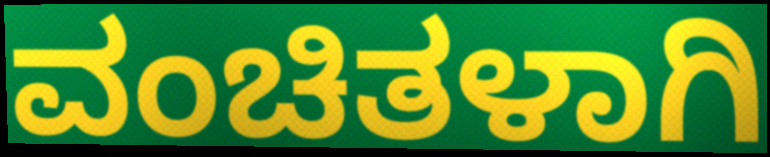
ವಂಚಿತಳಾಗಿ